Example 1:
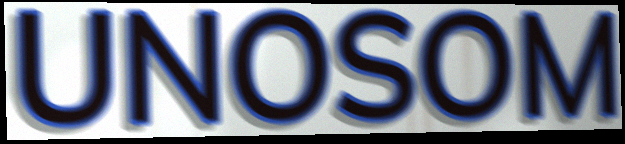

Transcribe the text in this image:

UNOSOM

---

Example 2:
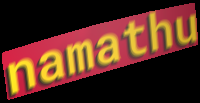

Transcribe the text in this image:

namathu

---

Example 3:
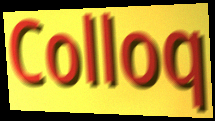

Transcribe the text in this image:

Colloq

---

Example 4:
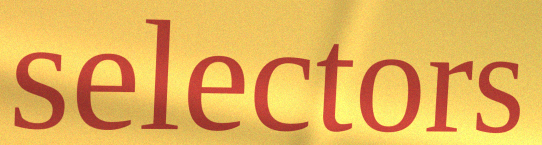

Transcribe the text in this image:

selectors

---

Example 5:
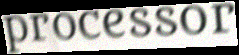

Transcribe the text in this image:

processor